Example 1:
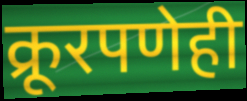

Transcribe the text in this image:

क्रूरपणेही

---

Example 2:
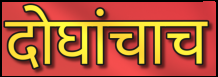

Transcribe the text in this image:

दोघांचाच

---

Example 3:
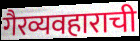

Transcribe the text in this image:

गैरव्यवहाराची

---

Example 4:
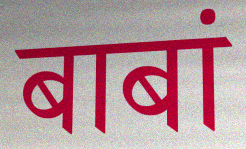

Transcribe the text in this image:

बाबां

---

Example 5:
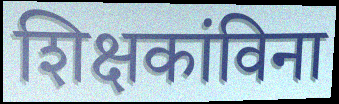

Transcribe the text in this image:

शिक्षकांविना